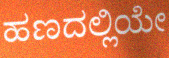
ಹಣದಲ್ಲಿಯೇ